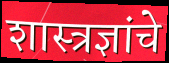
शास्त्रज्ञांचे